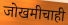
जोखमीचाही